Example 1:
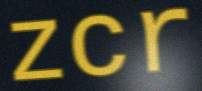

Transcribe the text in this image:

zcr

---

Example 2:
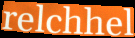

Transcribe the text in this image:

relchhel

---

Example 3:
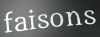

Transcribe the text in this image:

faisons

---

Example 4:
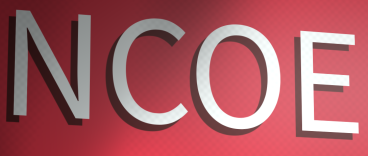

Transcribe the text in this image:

NCOE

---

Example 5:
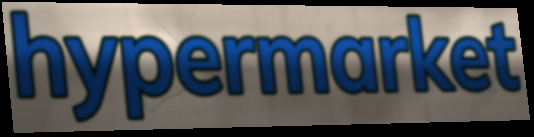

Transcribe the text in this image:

hypermarket